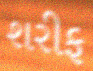
શરીફ